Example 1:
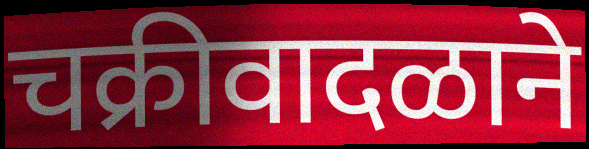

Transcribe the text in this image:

चक्रीवादळाने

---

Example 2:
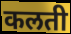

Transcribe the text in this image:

कलती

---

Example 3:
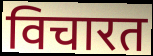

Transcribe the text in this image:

विचारत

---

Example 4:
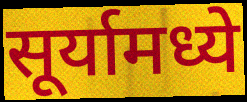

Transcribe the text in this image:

सूर्यामध्ये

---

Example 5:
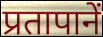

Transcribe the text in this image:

प्रतापानें